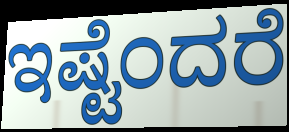
ಇಷ್ಟೆಂದರೆ